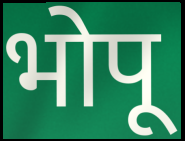
भोपू